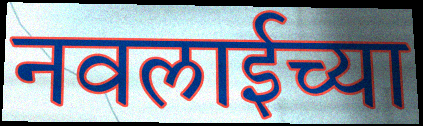
नवलाईच्या